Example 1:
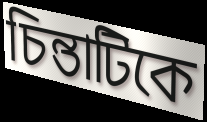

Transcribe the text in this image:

চিন্তাটিকে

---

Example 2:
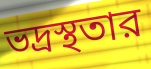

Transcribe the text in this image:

ভদ্রস্থতার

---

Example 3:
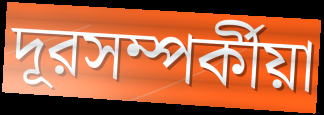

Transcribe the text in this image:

দূরসম্পর্কীয়া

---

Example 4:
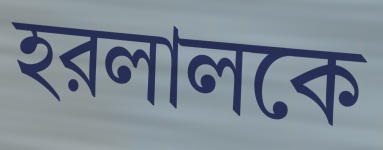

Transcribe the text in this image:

হরলালকে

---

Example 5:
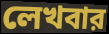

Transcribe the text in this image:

লেখবার